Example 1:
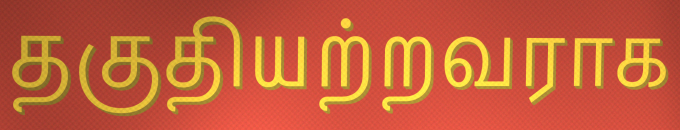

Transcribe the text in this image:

தகுதியற்றவராக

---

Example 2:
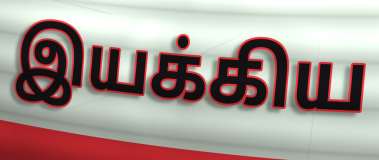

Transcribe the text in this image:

இயக்கிய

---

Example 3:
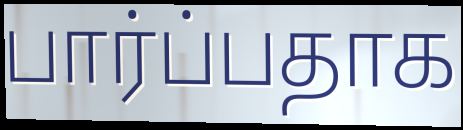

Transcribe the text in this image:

பார்ப்பதாக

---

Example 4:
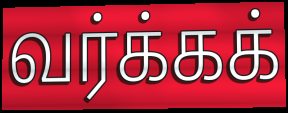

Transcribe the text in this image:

வர்க்கக்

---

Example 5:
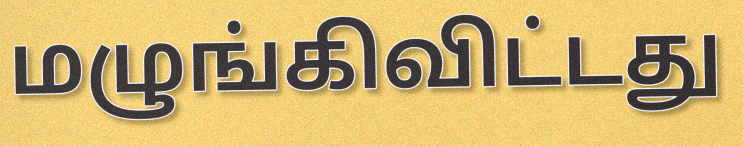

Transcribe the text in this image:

மழுங்கிவிட்டது